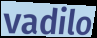
vadilo